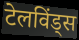
टेलविंड्स